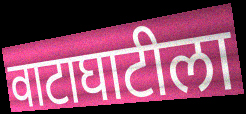
वाटाघाटीला